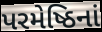
પરમેષ્ઠિનાં